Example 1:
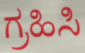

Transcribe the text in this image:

ಗ್ರಹಿಸಿ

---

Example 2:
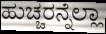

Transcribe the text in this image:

ಹುಚ್ಚರನ್ನೆಲ್ಲಾ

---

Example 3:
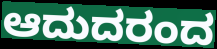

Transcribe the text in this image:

ಆದುದರಂದ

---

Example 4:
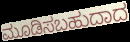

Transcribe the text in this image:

ಮೂಡಿಸಬಹುದಾದ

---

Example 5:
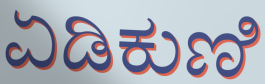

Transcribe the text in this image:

ಏಡಿಕುಣಿ